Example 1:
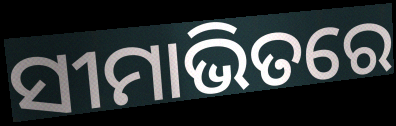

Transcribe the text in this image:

ସୀମାଭିତରେ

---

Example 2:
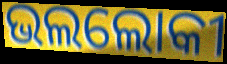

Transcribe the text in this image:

ଭଲଲୋକୀ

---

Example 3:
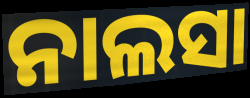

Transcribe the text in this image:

ନାଲସା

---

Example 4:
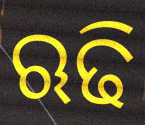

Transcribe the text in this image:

ଋଢି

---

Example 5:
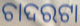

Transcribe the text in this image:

ଚାଦରଟା